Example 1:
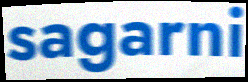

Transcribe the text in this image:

sagarni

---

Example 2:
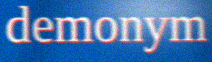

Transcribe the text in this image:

demonym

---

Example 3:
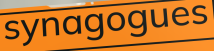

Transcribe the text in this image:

synagogues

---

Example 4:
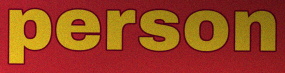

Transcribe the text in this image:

person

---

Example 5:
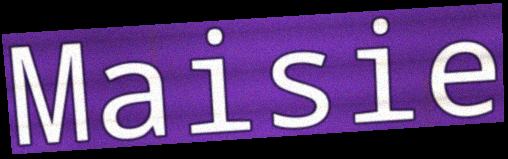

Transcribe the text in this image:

Maisie